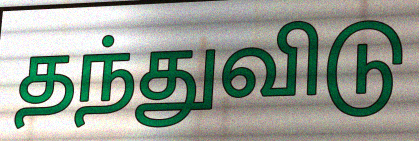
தந்துவிடு